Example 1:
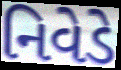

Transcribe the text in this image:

નિવેડે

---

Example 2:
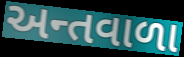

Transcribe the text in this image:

અન્તવાળા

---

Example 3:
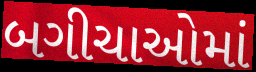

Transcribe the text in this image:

બગીચાઓમાં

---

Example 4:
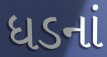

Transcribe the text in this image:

ધડનાં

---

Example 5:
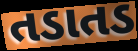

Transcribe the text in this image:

તડાતડ